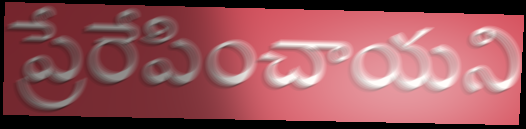
ప్రేరేపించాయని